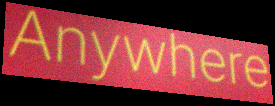
Anywhere